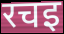
रचइ